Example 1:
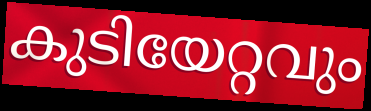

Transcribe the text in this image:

കുടിയേറ്റവും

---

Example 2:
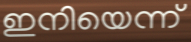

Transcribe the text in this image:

ഇനിയെന്ന്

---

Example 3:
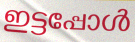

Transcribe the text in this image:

ഇട്ടപ്പോൾ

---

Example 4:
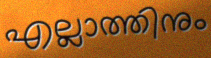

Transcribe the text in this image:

എല്ലാത്തിനും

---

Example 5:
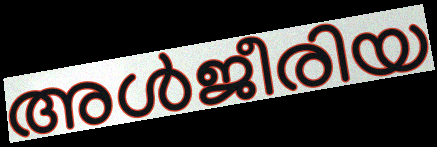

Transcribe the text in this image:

അൾജീരിയ